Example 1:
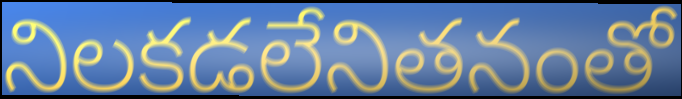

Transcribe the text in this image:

నిలకడలేనితనంతో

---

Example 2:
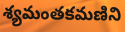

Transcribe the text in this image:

శ్యమంతకమణిని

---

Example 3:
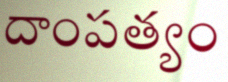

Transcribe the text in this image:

దాంపత్యం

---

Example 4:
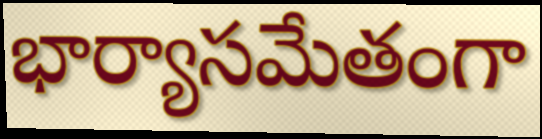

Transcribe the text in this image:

భార్యాసమేతంగా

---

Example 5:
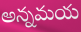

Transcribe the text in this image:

అన్నమయ